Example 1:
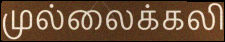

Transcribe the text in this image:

முல்லைக்கலி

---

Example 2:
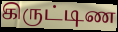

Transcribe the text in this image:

கிருட்டிண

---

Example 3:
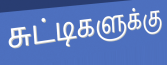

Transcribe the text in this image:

சுட்டிகளுக்கு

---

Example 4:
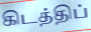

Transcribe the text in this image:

கிடத்திப்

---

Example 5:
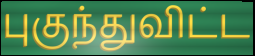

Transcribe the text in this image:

புகுந்துவிட்ட